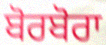
ਬੋਰਬੋਰਾ